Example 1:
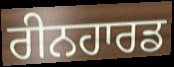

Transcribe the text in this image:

ਰੀਨਹਾਰਡ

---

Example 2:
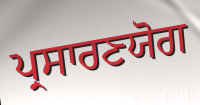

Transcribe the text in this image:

ਪ੍ਰਸਾਰਣਯੋਗ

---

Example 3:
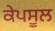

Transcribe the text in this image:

ਕੇਪਸੂਲ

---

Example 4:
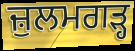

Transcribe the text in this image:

ਜ਼ੁਲਮਗੜ੍ਹ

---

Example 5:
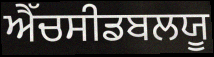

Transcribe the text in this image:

ਐੱਚਸੀਡਬਲਯੂ